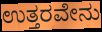
ಉತ್ತರವೇನು